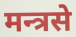
मन्त्रसे